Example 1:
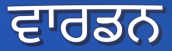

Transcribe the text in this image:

ਵਾਰਡਨ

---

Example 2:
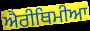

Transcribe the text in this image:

ਐਰੀਥਿਮੀਆ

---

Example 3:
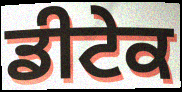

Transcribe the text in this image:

ਡੀਟੇਕ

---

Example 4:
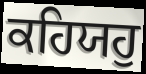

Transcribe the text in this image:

ਕਹਿਯਹੁ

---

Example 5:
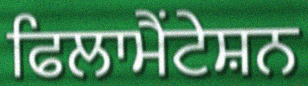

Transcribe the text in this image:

ਫਿਲਾਮੈਂਟੇਸ਼ਨ